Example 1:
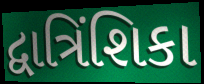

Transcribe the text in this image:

દ્વાત્રિંશિકા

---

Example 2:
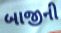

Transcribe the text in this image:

બાજીની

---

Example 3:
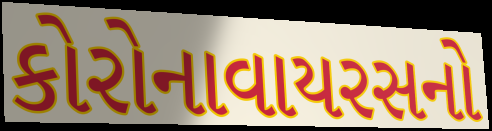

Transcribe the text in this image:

કોરોનાવાયરસનો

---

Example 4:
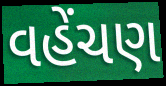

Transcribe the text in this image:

વહેંચણ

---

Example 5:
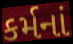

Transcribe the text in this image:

કર્મનાં